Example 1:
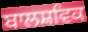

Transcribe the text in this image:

ਬਾਲਸ਼ਵਿਕ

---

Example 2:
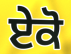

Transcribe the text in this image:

ਏਕੋ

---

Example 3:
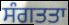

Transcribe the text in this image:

ਸੰਗਤਤਾ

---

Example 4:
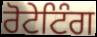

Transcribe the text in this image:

ਰੋਟੇਟਿੰਗ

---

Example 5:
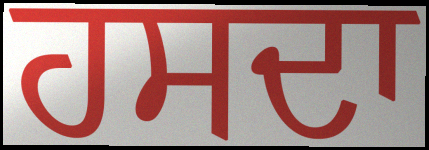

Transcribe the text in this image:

ਹਸਦਾ